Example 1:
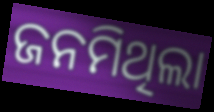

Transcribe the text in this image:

ଜନମିଥିଲା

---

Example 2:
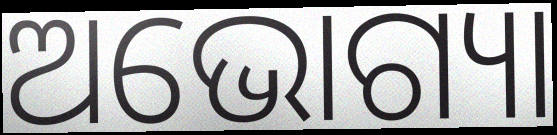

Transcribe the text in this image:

ଅଭୋଗ୍ୟା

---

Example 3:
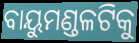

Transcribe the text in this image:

ବାୟୁମଣ୍ଡଳଟିକୁ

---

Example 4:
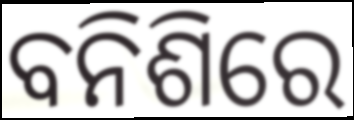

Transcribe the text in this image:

ବନିଶିରେ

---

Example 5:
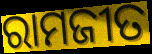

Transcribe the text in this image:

ରାମଜୀତ